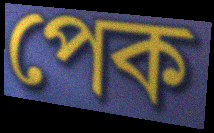
পেক